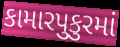
કામારપુકુરમાં